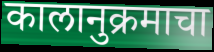
कालानुक्रमाचा